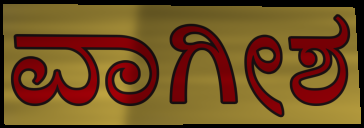
ವಾಗೀಶ